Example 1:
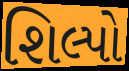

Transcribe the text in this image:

શિલ્પો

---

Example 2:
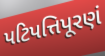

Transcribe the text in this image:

પટિપત્તિપૂરણં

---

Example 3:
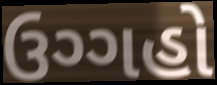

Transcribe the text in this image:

ઉગ્ગહો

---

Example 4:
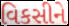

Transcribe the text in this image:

વિકસીને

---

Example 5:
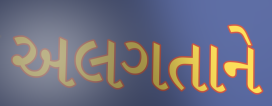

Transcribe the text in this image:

અલગતાને